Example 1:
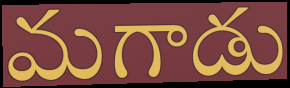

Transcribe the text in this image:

మగాడు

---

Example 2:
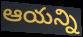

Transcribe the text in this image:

ఆయన్ని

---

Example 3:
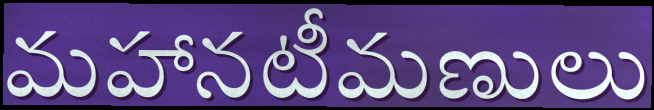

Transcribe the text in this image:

మహానటీమణులు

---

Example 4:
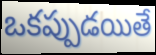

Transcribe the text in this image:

ఒకప్పుడయితే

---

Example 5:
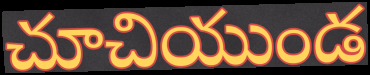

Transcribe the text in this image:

చూచియుండ